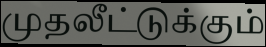
முதலீட்டுக்கும்